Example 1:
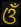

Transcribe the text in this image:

ଓଁ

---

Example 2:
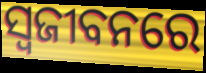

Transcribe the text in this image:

ସ୍ଵଜୀବନରେ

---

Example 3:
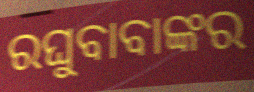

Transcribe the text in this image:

ରଘୁବାବାଙ୍କର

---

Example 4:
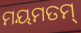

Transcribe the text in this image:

ମୟମତମ୍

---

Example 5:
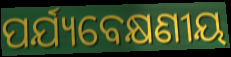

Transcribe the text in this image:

ପର୍ଯ୍ୟବେକ୍ଷଣୀୟ